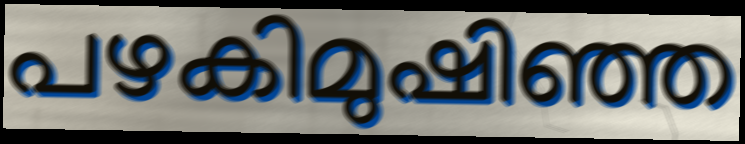
പഴകിമുഷിഞ്ഞ